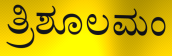
ತ್ರಿಶೂಲಮಂ